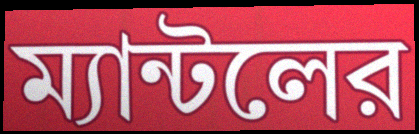
ম্যান্টলের